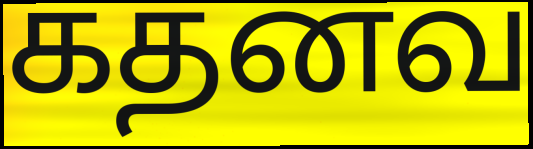
கதனவ